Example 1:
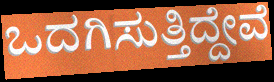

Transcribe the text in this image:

ಒದಗಿಸುತ್ತಿದ್ದೇವೆ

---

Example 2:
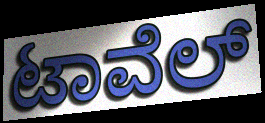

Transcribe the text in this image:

ಟಾವೆಲ್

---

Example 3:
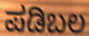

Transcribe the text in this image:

ಪಡಿಬಲ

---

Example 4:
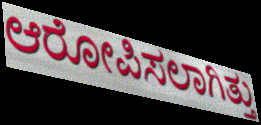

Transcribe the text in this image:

ಆರೋಪಿಸಲಾಗಿತ್ತು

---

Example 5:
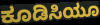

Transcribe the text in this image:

ಕೂಡಿಸಿಯೂ